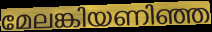
മേലങ്കിയണിഞ്ഞ